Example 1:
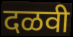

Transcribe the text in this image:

दळवी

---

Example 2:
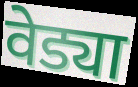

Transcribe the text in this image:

वेड्या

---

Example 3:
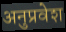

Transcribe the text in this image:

अनुप्रवेश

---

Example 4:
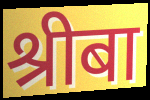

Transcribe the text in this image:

श्रीबा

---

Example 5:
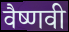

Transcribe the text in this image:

वैष्णवी